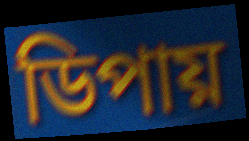
ডিপায়